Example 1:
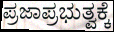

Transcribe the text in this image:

ಪ್ರಜಾಪ್ರಭುತ್ವಕ್ಕೆ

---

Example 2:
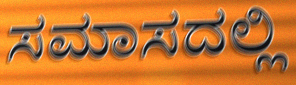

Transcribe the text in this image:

ಸಮಾಸದಲ್ಲಿ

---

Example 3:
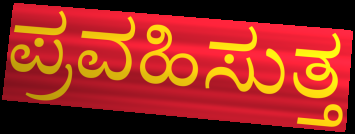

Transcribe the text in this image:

ಪ್ರವಹಿಸುತ್ತ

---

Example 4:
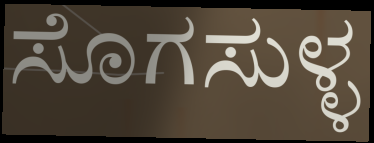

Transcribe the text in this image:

ಸೊಗಸುಳ್ಳ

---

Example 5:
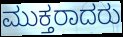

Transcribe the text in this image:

ಮುಕ್ತರಾದರು